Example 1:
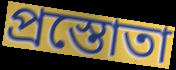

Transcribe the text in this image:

প্রস্তোতা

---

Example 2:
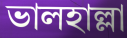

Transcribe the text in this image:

ভালহাল্লা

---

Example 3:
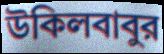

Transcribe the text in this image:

উকিলবাবুর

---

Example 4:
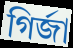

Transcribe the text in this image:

গির্জা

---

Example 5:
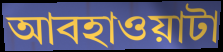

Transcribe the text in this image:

আবহাওয়াটা